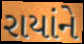
રાયાંને